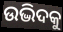
ଉଦ୍ଭିଦକୁ